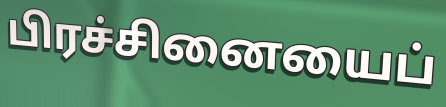
பிரச்சினையைப்